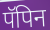
पॅपिन